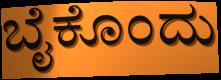
ಬೈಕೊಂದು